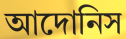
আদোনিস